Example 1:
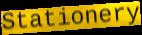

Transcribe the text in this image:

Stationery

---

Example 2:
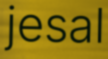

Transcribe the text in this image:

jesal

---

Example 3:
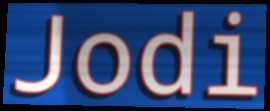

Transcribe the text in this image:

Jodi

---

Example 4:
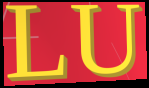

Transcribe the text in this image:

LU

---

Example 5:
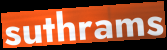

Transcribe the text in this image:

suthrams